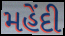
મહેંદી